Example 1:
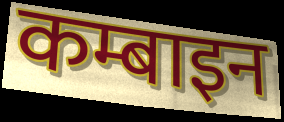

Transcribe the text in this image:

कम्बाइन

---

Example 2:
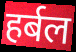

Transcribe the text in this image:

हर्बल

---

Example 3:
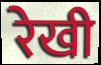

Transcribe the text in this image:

रेखी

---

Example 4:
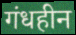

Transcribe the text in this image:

गंधहीन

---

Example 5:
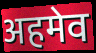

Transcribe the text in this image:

अहमेव